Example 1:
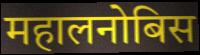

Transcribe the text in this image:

महालनोबिस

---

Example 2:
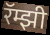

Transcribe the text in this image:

रॅम्झी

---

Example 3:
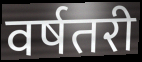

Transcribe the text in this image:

वर्षतरी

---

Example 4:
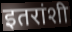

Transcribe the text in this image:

इतरांशी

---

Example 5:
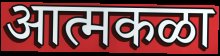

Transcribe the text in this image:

आत्मकळा